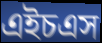
এইচএস